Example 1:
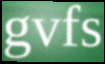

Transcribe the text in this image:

gvfs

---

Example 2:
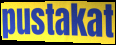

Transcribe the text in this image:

pustakat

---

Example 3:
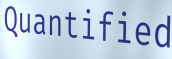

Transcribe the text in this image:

Quantified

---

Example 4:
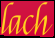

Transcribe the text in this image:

lach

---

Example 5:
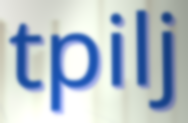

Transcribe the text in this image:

tpilj